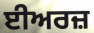
ਈਅਰਜ਼